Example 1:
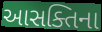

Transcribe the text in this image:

આસક્તિના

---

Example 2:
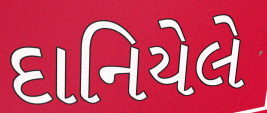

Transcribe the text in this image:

દાનિયેલે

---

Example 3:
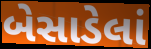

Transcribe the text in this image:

બેસાડેલાં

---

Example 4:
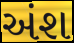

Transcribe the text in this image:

અંશ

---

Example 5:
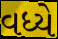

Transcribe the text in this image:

વધ્યે